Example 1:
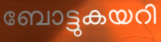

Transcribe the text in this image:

ബോട്ടുകയറി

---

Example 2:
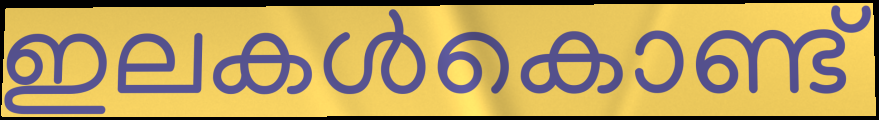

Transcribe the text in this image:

ഇലകൾകൊണ്ട്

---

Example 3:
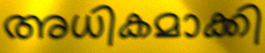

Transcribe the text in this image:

അധികമാക്കി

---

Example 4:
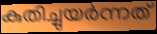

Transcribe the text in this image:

കുതിച്ചുയർന്നത്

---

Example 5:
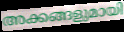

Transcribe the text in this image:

അക്കങ്ങളുമായി